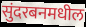
सुंदरबनमधील